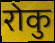
रोकु